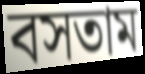
বসতাম